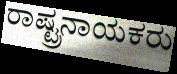
ರಾಷ್ಟ್ರನಾಯಕರು